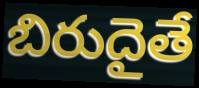
బిరుదైతే